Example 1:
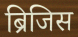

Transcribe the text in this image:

ब्रिजिस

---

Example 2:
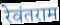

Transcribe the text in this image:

रेवंतराम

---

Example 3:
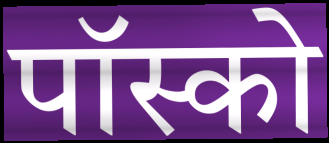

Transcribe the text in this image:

पॉस्को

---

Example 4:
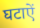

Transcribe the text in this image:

घटाऐं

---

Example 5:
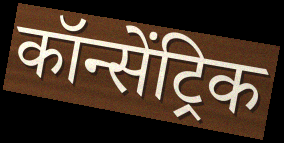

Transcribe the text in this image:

कॉन्सेंट्रिक